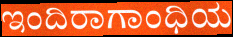
ಇಂದಿರಾಗಾಂಧಿಯ